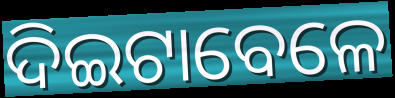
ଦିଇଟାବେଳେ